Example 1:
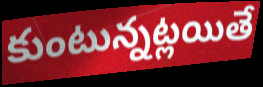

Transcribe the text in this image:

కుంటున్నట్లయితే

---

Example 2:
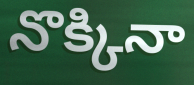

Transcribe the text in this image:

నొక్కినా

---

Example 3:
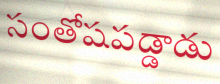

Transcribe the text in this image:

సంతోషపడ్డాడు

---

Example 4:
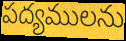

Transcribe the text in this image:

పద్యములను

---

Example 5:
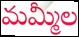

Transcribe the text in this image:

మమ్మీల